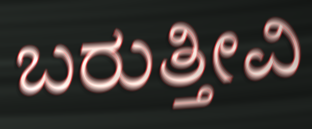
ಬರುತ್ತೀವಿ